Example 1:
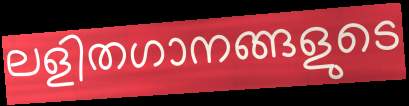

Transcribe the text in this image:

ലളിതഗാനങ്ങളുടെ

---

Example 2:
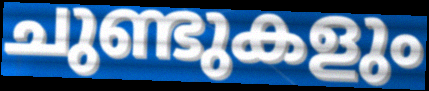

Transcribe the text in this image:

ചുണ്ടുകളും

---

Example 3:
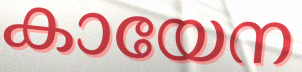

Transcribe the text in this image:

കായേന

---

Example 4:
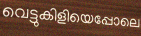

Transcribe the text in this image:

വെട്ടുകിളിയെപ്പോലെ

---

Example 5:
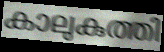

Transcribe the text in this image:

കാലുകുത്തി